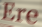
Ere